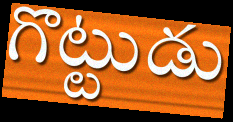
గొట్టుడు